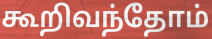
கூறிவந்தோம்